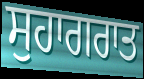
ਸੁਹਾਗਰਾਤ